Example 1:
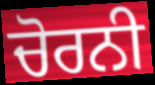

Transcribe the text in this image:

ਚੋਰਨੀ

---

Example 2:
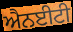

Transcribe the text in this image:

ਐਨਈਟੀ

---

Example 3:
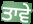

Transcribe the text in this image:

ਤਾਵੇ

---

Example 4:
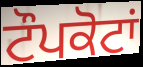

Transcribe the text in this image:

ਟੌਪਕੋਟਾਂ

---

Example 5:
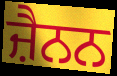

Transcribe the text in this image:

ਜ਼ੈਨਨ